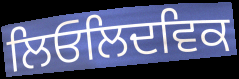
ਲਿਓਲਿਦਵਿਕ